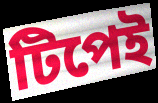
টিপেই